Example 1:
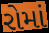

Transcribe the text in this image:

રોમાં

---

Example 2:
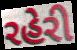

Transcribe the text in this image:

રહેરી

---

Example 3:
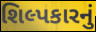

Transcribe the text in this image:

શિલ્પકારનું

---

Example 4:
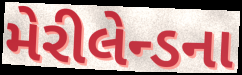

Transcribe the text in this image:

મેરીલેન્ડના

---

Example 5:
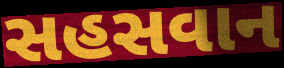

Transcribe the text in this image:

સહસવાન